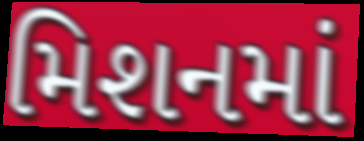
મિશનમાં